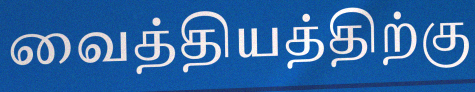
வைத்தியத்திற்கு